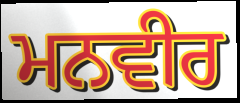
ਮਨਵੀਰ